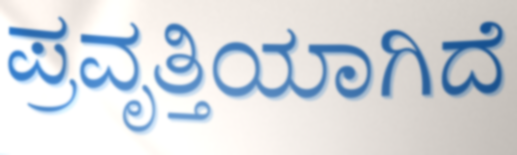
ಪ್ರವೃತ್ತಿಯಾಗಿದೆ